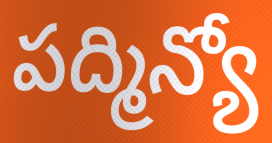
పద్మిన్యో